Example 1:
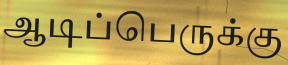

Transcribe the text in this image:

ஆடிப்பெருக்கு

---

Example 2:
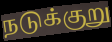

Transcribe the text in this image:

நடுக்குறு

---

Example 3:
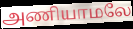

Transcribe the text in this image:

அணியாமலே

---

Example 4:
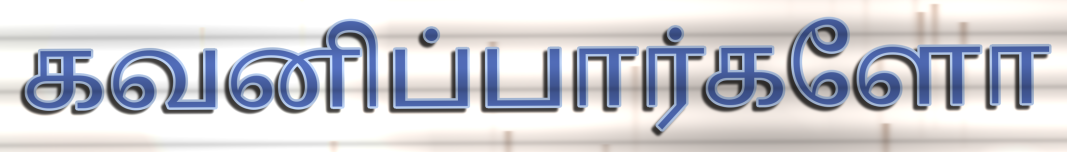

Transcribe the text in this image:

கவனிப்பார்களோ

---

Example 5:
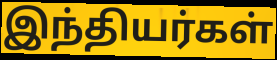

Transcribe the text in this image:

இந்தியர்கள்